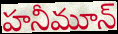
హనీమూన్